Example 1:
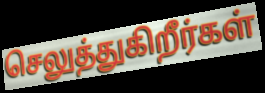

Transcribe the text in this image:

செலுத்துகிறீர்கள்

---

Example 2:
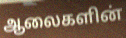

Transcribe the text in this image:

ஆலைகளின்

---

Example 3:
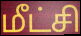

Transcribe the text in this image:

மீட்சி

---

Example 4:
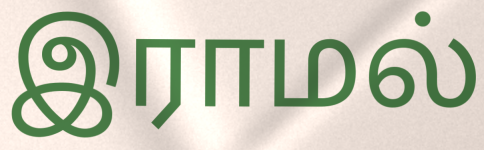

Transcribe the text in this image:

இராமல்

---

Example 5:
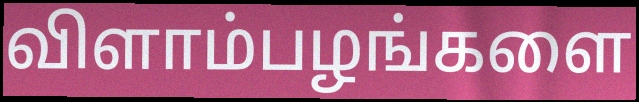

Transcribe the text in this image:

விளாம்பழங்களை